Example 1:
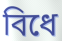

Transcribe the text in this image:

বিধে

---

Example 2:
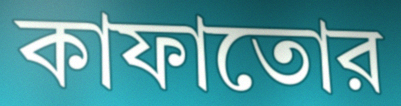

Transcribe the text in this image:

কাফাতোর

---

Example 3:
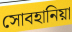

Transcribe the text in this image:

সোবহানিয়া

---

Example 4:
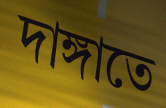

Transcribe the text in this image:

দাঙ্গাতে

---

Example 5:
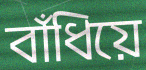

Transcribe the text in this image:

বাঁধিয়ে